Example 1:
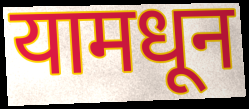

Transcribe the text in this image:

यामधून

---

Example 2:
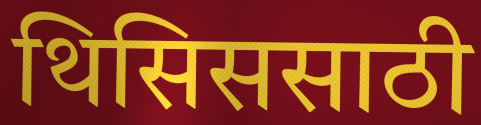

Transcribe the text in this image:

थिसिससाठी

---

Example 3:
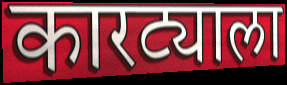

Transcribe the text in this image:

कारट्याला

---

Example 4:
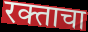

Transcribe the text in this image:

रक्‍ताचा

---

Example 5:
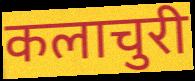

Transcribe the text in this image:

कलाचुरी